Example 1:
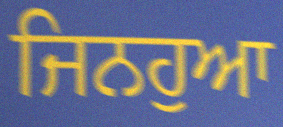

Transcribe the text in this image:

ਜਿਨਹੁਆ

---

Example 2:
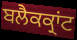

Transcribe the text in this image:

ਬਲੈਕਕ੍ਰਾਂਟ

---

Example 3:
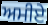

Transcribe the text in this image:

ਅਮੀਏ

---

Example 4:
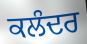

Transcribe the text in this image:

ਕਲੰਦਰ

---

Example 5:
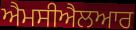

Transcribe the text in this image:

ਐਮਸੀਐਲਆਰ